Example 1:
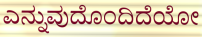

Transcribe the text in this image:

ಎನ್ನುವುದೊಂದಿದೆಯೋ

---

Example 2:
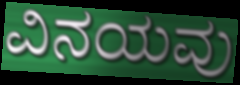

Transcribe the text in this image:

ವಿನಯವು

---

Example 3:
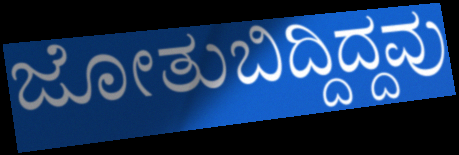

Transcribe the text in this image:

ಜೋತುಬಿದ್ದಿದ್ದವು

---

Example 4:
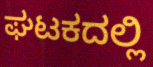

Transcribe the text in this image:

ಘಟಕದಲ್ಲಿ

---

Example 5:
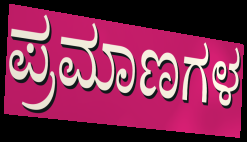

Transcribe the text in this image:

ಪ್ರಮಾಣಗಳ